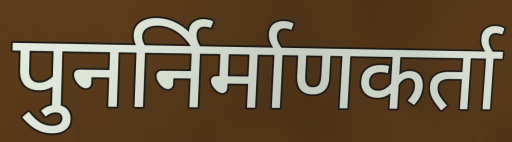
पुनर्निर्माणकर्ता